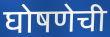
घोषणेची